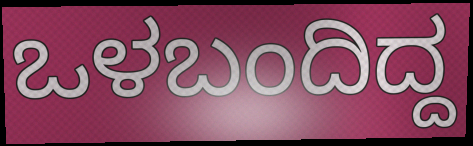
ಒಳಬಂದಿದ್ದ